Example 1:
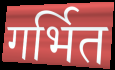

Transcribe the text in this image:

गर्भित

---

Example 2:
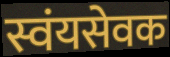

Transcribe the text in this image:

स्वंयसेवक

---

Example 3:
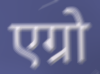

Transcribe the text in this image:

एग्रो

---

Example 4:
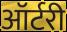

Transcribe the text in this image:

ऑर्टरी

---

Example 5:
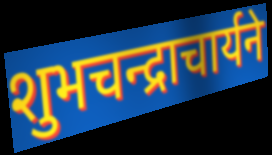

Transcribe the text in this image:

शुभचन्द्राचार्यने